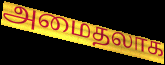
அமைதலாக